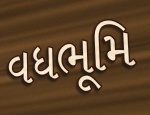
વધભૂમિ